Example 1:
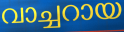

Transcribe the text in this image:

വാച്ചറായ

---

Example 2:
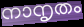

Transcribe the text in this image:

നാനൃതം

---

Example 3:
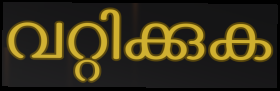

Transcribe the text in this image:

വറ്റിക്കുക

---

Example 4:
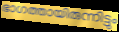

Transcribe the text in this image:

ഭാഗത്തായിരുന്നിട്ടും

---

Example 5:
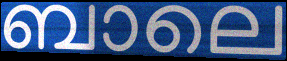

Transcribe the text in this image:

ബാലെ